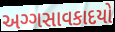
અગ્ગસાવકાદયો